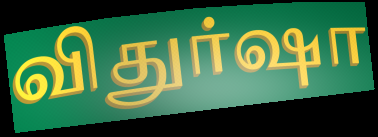
விதுர்ஷா